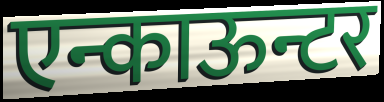
एन्काऊन्टर